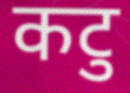
कटु